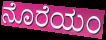
ನೊರೆಯಂ